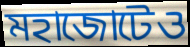
মহাজোটেও